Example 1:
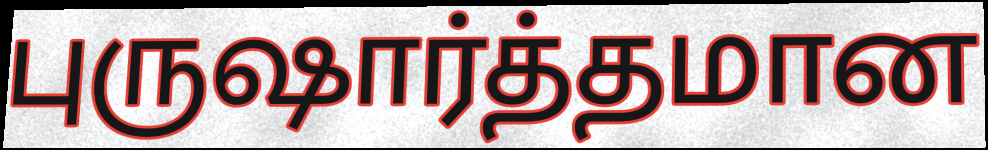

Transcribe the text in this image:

புருஷார்த்தமான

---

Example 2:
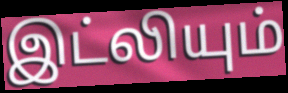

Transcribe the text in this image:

இட்லியும்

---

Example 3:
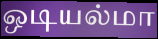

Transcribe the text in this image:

ஒடியல்மா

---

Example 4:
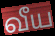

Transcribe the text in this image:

வீய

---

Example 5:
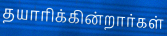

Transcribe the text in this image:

தயாரிக்கின்றார்கள்